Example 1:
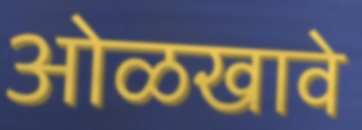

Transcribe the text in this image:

ओळखावे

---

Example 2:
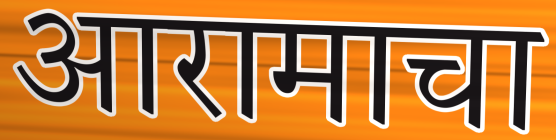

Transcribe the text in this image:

आरामाचा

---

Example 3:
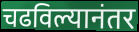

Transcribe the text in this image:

चढविल्यानंतर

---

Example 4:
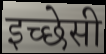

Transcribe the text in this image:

इच्छेसी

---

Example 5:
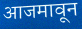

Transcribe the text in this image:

आजमावून